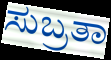
ಸುಬ್ರತಾ